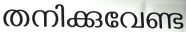
തനിക്കുവേണ്ട